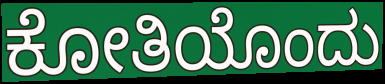
ಕೋತಿಯೊಂದು